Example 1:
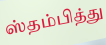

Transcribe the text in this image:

ஸ்தம்பித்து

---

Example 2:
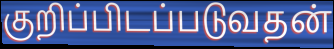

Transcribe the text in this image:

குறிப்பிடப்படுவதன்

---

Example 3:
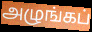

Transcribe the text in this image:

அழுங்கப்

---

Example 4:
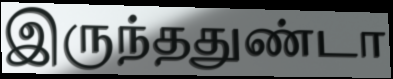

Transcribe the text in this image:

இருந்ததுண்டா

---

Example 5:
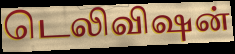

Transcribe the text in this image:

டெலிவிஷன்